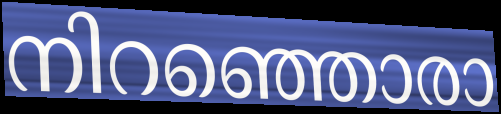
നിറഞ്ഞൊരാ